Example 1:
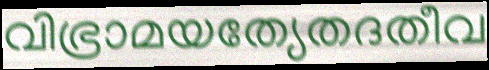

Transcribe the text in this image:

വിഭ്രാമയത്യേതദതീവ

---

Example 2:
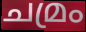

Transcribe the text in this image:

ചമ്രം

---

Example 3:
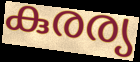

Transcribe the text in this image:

കുരര്യ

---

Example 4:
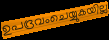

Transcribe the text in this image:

ഉപദ്രവംചെയ്യുകയില്ല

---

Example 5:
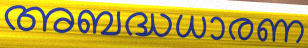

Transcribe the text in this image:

അബദ്ധധാരണ